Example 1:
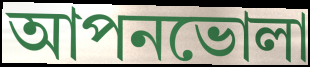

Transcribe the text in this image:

আপনভোলা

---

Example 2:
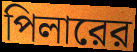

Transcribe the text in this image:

পিলারের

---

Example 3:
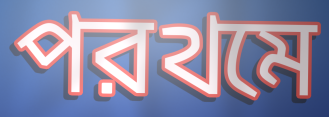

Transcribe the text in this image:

পরথমে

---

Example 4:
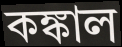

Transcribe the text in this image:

কঙ্কাল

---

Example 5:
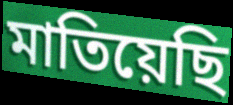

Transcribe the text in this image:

মাতিয়েছি